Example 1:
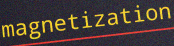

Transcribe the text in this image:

magnetization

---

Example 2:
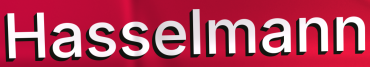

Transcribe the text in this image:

Hasselmann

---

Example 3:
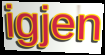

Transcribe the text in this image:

igjen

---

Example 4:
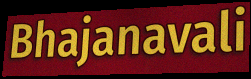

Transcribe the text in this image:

Bhajanavali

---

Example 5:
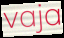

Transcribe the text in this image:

vaja